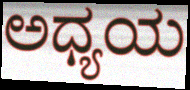
ಅಧ್ಯಯ